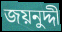
জয়নুদ্দী